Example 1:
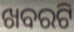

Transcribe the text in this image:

ଖବରଟି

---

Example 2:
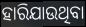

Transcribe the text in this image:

ହାରିଯାଉଥିବା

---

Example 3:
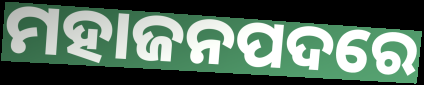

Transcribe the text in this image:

ମହାଜନପଦରେ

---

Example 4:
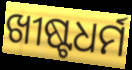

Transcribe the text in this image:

ଖୀଷ୍ଟଧର୍ମ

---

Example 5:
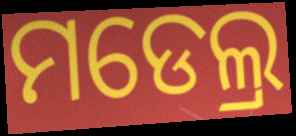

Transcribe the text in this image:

ମଡେଲ୍ର